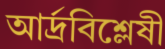
আর্দ্রবিশ্লেষী